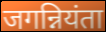
जगन्नियंता